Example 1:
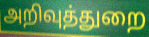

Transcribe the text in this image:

அறிவுத்துறை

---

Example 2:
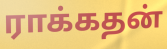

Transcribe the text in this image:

ராக்கதன்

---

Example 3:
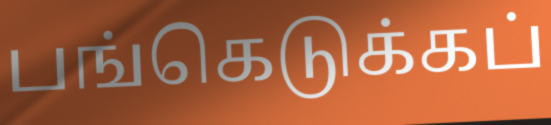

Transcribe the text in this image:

பங்கெடுக்கப்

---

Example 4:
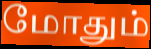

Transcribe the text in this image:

மோதும்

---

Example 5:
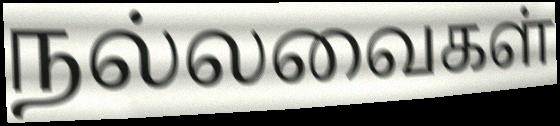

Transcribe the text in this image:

நல்லவைகள்